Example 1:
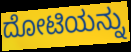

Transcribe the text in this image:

ದೋಟಿಯನ್ನು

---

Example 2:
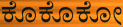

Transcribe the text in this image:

ಕೊಕೊಕೋ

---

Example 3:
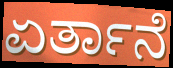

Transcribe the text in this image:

ಏರ್ತಾನೆ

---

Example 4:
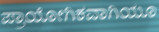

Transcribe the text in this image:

ಪ್ರಾಯೋಗಿಕವಾಗಿಯೂ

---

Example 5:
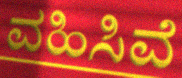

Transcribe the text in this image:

ವಹಿಸಿವೆ